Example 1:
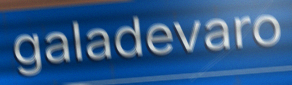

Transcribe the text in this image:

galadevaro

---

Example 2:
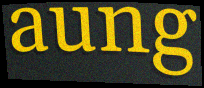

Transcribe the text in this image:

aung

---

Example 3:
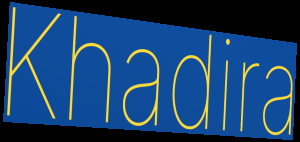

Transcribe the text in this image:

Khadira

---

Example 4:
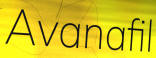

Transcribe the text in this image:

Avanafil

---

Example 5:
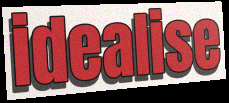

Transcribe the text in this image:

idealise